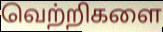
வெற்றிகளை